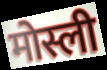
मोस्ली